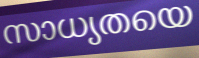
സാധ്യതയെ